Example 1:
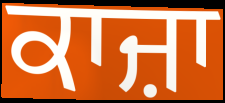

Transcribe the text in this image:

ਕਾਜ਼ਾ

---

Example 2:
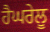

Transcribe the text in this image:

ਹੈਘਰੇਲੂ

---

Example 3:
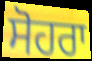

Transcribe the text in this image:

ਸੋਹਰਾ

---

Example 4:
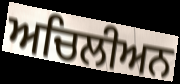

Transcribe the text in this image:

ਅਚਿਲੀਅਨ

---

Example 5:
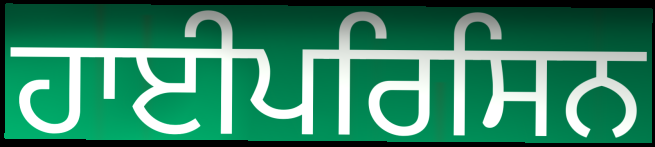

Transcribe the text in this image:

ਹਾਈਪਰਿਸਿਨ